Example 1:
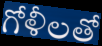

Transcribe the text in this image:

గోళీలతో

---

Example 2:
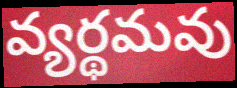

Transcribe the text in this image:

వ్యర్థమవు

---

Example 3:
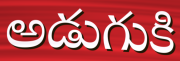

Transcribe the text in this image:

అడుగుకి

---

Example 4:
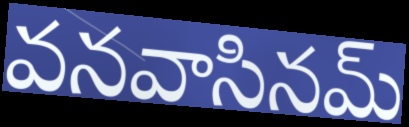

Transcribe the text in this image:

వనవాసినమ్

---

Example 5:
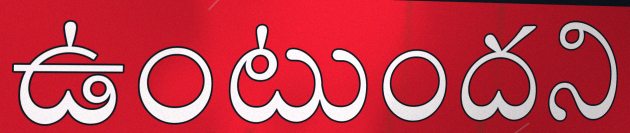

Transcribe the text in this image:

ఉంటుందని